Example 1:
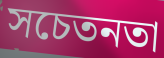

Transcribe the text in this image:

সচেতনতা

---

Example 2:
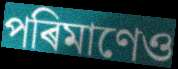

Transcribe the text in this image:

পৰিমাণেও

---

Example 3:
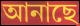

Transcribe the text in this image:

আনাছে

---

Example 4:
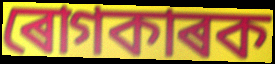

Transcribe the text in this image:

ৰোগকাৰক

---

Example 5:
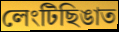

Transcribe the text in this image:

লেংটিছিঙাত